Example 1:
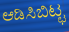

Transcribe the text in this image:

ಆಡಿಸಿಬಿಟ್ಟ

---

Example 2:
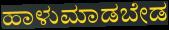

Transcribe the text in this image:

ಹಾಳುಮಾಡಬೇಡ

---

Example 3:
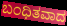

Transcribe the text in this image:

ಬಂಧಿತವಾದ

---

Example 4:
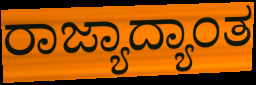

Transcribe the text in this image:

ರಾಜ್ಯಾದ್ಯಾಂತ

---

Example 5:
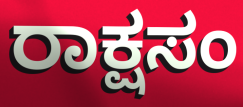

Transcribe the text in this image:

ರಾಕ್ಷಸಂ